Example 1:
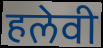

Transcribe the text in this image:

हलेवी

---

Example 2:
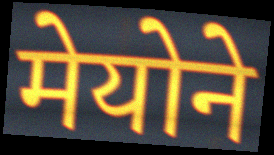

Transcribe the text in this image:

मेयोने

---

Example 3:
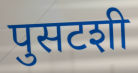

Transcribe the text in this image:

पुसटशी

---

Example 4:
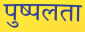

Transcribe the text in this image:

पुष्पलता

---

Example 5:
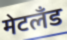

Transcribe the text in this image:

मेटलँड